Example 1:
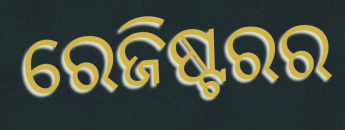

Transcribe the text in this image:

ରେଜିଷ୍ଟରର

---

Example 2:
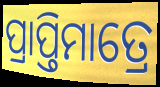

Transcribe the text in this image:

ପ୍ରାପ୍ତିମାତ୍ରେ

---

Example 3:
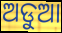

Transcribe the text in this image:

ଅଡୁଆ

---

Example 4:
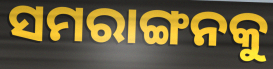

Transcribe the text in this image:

ସମରାଙ୍ଗନକୁ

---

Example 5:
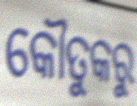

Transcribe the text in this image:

କୌତୁକରୁ